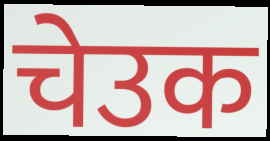
चेउक